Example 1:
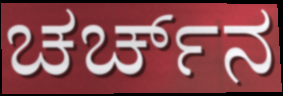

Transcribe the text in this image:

ಚರ್ಚ್‌ನ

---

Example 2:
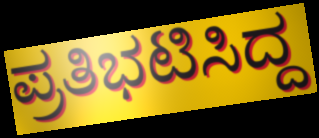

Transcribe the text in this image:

ಪ್ರತಿಭಟಿಸಿದ್ದ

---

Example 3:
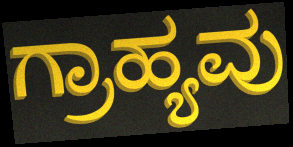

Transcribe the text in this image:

ಗ್ರಾಹ್ಯವು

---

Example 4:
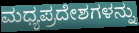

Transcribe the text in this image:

ಮಧ್ಯಪ್ರದೇಶಗಳನ್ನು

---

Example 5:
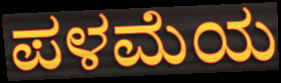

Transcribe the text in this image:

ಪಳಮೆಯ